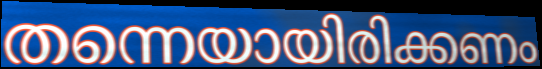
തന്നെയായിരിക്കണം